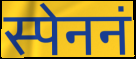
स्पेननं